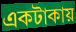
একটাকায়